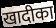
खादीका